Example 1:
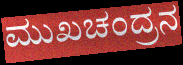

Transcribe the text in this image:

ಮುಖಚಂದ್ರನ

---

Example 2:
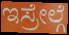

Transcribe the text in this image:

ಇಸ್ರೇಲ್ಗೆ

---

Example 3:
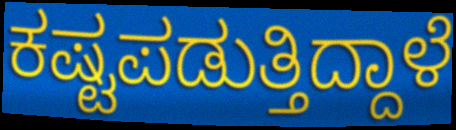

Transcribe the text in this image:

ಕಷ್ಟಪಡುತ್ತಿದ್ದಾಳೆ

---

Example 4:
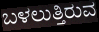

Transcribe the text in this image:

ಬಳಲುತ್ತಿರುವ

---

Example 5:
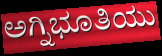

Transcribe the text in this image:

ಅಗ್ನಿಭೂತಿಯು